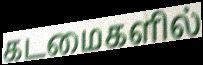
கடமைகளில்